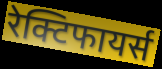
रेक्टिफायर्स